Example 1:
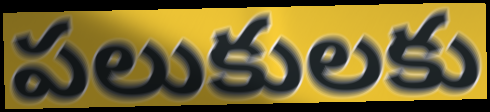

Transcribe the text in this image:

పలుకులకు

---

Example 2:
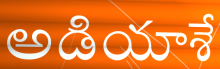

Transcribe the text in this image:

అడియాశే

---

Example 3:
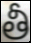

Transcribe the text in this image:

తీ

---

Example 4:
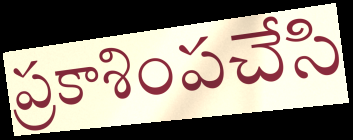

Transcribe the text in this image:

ప్రకాశింపచేసి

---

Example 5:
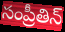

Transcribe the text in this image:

సంప్రీతిన్